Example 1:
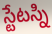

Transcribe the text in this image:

స్టేటస్ని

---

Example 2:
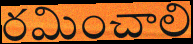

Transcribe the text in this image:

రమించాలి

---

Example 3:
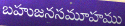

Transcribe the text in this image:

బహుజనసమూహము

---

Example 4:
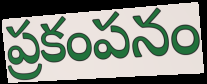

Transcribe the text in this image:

ప్రకంపనం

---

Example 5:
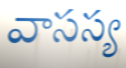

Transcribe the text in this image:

వాసస్య